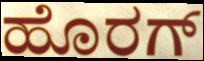
ಹೊರಗ್